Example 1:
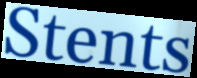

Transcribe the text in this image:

Stents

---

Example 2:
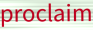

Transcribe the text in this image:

proclaim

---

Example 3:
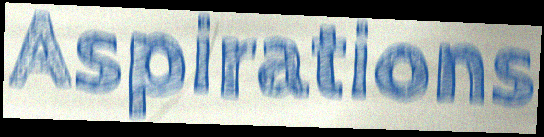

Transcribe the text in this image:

Aspirations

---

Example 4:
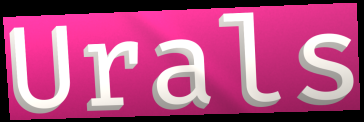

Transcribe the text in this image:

Urals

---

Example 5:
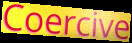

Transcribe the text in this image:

Coercive